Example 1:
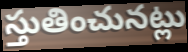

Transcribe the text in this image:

స్తుతించునట్లు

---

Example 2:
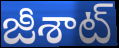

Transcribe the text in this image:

జీశాట్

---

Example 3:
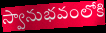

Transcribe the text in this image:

స్వానుభవంలోకి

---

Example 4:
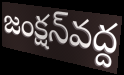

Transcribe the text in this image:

జంక్షన్‌వద్ద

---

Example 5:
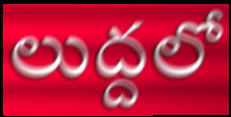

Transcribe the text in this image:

లుద్దలో